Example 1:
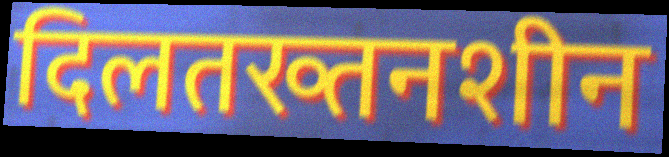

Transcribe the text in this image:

दिलतख्तनशीन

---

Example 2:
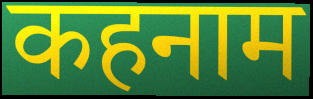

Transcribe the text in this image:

कहनाम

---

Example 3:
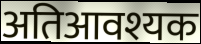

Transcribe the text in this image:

अतिआवश्यक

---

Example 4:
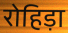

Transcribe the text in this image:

रोहिड़ा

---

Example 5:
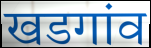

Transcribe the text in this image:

खडगांव